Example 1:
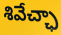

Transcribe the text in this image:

శివేచ్ఛా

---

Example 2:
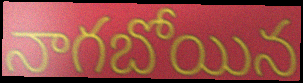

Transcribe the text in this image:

నాగబోయిన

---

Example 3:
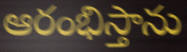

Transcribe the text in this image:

ఆరంభిస్తాను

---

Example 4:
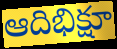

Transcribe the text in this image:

ఆదిభిక్షూ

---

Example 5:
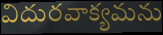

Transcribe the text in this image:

విదురవాక్యమను